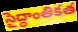
సైద్ధాంతికత